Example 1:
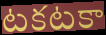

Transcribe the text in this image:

టకటకా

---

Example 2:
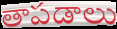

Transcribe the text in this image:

తాపడాలు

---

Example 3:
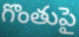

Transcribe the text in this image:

గొంతుపై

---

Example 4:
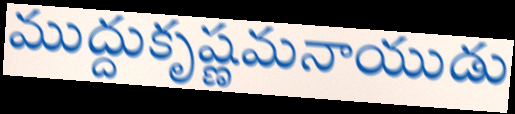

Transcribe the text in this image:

ముద్దుకృష్ణమనాయుడు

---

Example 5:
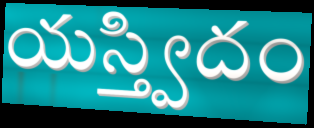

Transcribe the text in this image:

యస్త్విదం